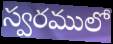
స్వరములో